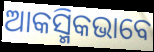
ଆକସ୍ମିକଭାବେ